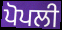
ਪੋਪਲੀ